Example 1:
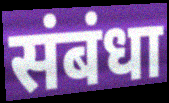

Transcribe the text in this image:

संबंधा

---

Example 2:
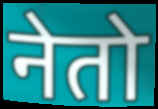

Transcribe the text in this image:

नेतो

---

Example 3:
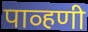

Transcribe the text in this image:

पाव्हणी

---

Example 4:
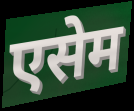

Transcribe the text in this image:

एसेम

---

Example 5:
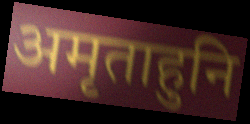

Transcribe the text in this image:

अमृताहुनि